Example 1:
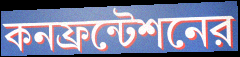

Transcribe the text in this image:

কনফ্রন্টেশনের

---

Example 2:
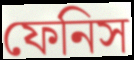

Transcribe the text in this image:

ফেনিস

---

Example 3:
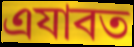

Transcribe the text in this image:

এযাবত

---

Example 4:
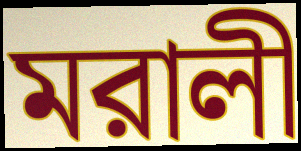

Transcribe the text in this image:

মরালী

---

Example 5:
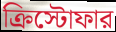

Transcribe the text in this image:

ক্রিস্টোফার